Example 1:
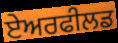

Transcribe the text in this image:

ਏਅਰਫੀਲਡ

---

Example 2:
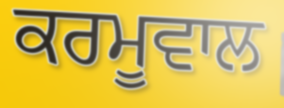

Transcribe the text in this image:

ਕਰਮੂਵਾਲ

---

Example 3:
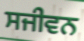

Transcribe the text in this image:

ਸਜੀਵਨ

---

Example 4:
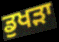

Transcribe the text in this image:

ਡੁਖੜਾ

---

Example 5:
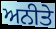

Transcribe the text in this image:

ਅਨੀਤੇ